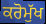
ਕਰੋਮੁੱਖ